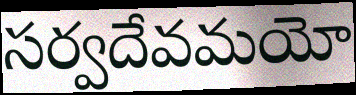
సర్వదేవమయో